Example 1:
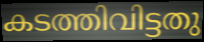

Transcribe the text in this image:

കടത്തിവിട്ടതു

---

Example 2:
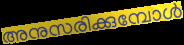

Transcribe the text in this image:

അനുസരിക്കുമ്പോൾ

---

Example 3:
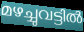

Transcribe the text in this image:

മഴച്ചുവട്ടിൽ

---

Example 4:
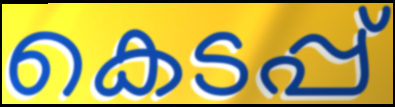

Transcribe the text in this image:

കെടപ്പ്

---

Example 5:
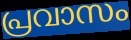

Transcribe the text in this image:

പ്രവാസം